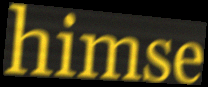
himse